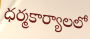
ధర్మకార్యాలలో